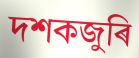
দশকজুৰি